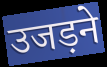
उजड़ने